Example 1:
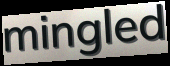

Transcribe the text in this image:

mingled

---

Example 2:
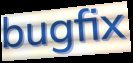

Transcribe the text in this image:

bugfix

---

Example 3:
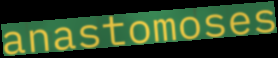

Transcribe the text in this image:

anastomoses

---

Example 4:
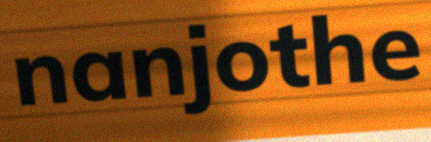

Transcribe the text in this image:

nanjothe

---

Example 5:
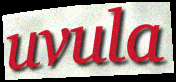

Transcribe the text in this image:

uvula